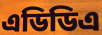
এডিডিএ